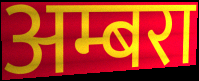
अम्बरा